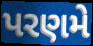
પરણમે